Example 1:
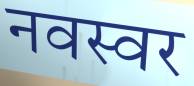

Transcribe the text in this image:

नवस्वर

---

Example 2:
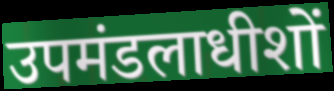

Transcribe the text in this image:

उपमंडलाधीशों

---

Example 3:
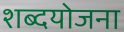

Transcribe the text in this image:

शब्दयोजना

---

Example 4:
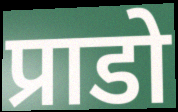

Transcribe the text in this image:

प्राडो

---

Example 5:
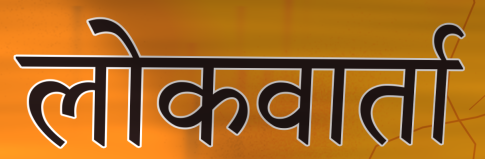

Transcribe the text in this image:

लोकवार्ता